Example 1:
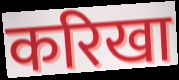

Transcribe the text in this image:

करिखा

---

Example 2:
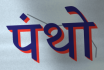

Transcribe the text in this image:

पंथो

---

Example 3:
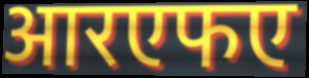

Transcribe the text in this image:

आरएफए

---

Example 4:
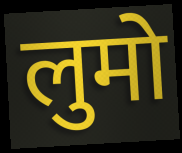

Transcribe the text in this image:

लुमो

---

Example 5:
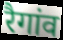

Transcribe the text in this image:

रैगांव